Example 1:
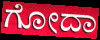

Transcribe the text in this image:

ಗೋದಾ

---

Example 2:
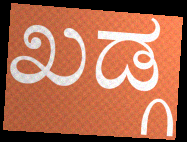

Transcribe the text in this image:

ಖಡ್ಗ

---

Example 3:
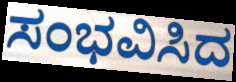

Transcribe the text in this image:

ಸಂಭವಿಸಿದ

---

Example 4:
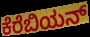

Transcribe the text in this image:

ಕೆರೆಬಿಯನ್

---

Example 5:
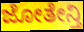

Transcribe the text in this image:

ಜೋತೇನ್ತಿ